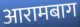
आरामबाग